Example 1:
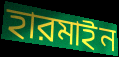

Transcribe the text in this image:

হারমাইন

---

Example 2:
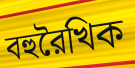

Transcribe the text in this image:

বহুরৈখিক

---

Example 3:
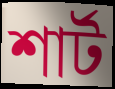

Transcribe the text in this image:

শার্ট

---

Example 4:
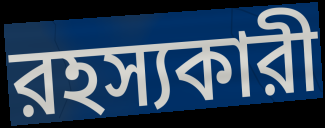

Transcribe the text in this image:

রহস্যকারী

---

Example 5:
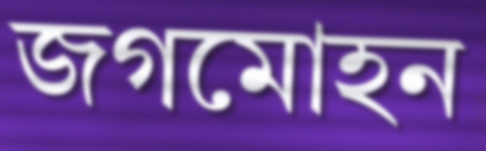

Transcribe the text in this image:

জগমোহন